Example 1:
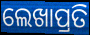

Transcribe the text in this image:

ଲେଖାପ୍ରତି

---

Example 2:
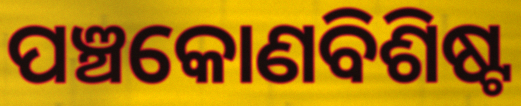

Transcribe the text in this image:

ପଞ୍ଚକୋଣବିଶିଷ୍ଟ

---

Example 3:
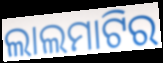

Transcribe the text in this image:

ଲାଲମାଟିର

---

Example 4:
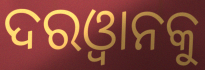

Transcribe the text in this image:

ଦରଓ୍ୱାନକୁ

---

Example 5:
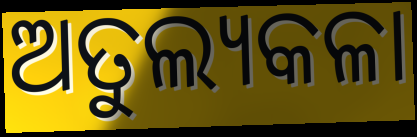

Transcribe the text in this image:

ଅତୁଲ୍ୟକଳା